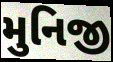
મુનિજી